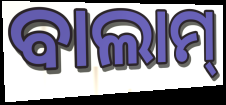
ବାଲାମ୍